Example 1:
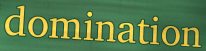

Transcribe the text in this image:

domination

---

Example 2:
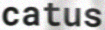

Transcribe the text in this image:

catus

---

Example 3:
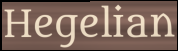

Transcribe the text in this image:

Hegelian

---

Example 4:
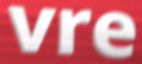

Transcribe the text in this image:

vre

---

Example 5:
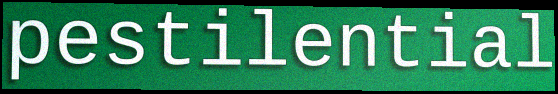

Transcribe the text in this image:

pestilential